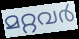
മറ്റവർ